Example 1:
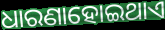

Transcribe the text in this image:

ଧାରଣାହୋଇଥାଏ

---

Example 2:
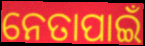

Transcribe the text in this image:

ନେତାପାଇଁ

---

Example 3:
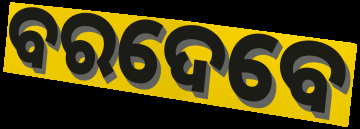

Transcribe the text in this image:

ବରଦେବେ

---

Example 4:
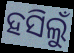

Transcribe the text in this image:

ହସିଲୁଁ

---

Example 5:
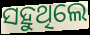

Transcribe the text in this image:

ସହୁଥିଲେ